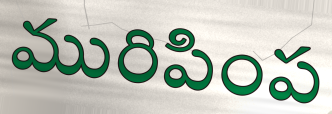
మురిపింప